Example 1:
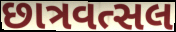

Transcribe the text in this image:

છાત્રવત્સલ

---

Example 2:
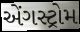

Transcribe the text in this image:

એંગસ્ટ્રોમ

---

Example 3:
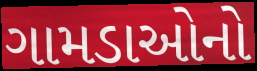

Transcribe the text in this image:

ગામડાઓનો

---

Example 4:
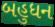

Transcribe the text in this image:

બહુધન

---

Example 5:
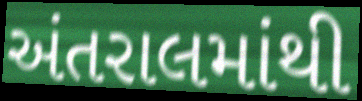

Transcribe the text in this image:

અંતરાલમાંથી